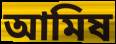
আমিষ